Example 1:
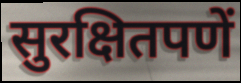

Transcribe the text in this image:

सुरक्षितपणें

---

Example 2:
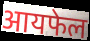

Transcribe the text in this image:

आयफेल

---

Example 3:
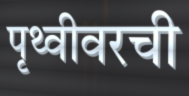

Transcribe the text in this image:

पृथ्वीवरची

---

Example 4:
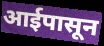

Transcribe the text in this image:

आईपासून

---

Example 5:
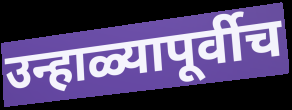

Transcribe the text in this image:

उन्हाळ्यापूर्वीच